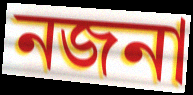
নজনা